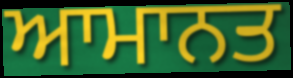
ਆਮਾਨਤ